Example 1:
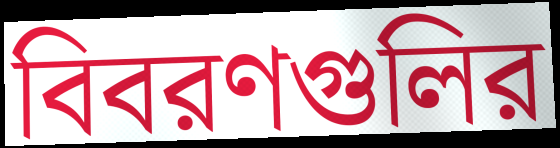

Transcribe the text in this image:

বিবরণগুলির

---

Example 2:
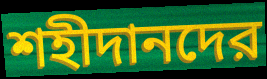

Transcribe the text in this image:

শহীদানদের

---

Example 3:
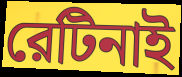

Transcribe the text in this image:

রেটিনাই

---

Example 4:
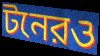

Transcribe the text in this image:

টনেরও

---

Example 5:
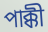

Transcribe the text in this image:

পাক্কী